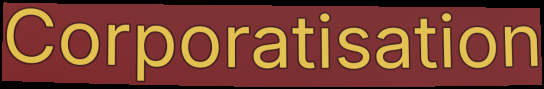
Corporatisation